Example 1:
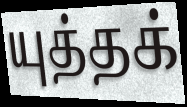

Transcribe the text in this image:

யுத்தக்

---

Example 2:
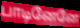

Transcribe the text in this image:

பாடினேனே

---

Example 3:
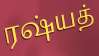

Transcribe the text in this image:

ரஷ்யத்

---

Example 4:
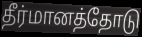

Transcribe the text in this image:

தீர்மானத்தோடு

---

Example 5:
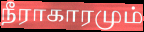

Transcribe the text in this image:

நீராகாரமும்